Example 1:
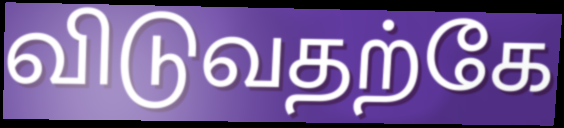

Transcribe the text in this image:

விடுவதற்கே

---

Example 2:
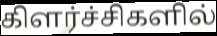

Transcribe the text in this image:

கிளர்ச்சிகளில்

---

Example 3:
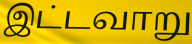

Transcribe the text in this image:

இட்டவாறு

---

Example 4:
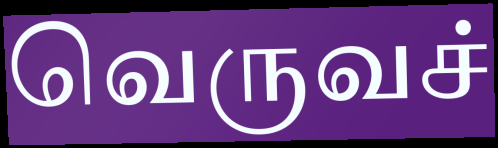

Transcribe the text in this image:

வெருவச்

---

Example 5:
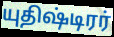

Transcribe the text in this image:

யுதிஷ்டிரர்